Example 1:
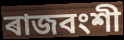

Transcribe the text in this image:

ৰাজবংশী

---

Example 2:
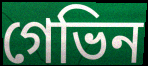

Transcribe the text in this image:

গেভিন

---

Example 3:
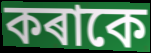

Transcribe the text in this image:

কৰাকে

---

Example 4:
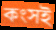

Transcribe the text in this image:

কংসই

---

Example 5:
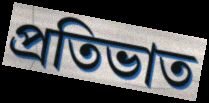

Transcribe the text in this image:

প্ৰতিভাত